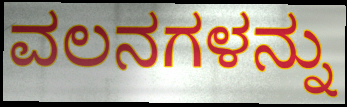
ವಲನಗಳನ್ನು